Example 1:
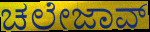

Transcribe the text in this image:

ಚಲೇಜಾವ್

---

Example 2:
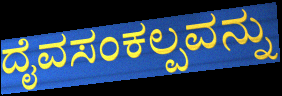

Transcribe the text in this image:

ದೈವಸಂಕಲ್ಪವನ್ನು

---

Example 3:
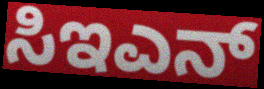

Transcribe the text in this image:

ಸಿಇಎನ್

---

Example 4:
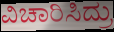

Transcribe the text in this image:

ವಿಚಾರಿಸಿದ್ರು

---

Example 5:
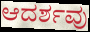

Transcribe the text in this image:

ಆದರ್ಶವು